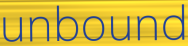
unbound